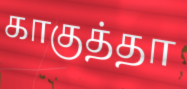
காகுத்தா